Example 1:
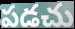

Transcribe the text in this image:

పడచు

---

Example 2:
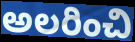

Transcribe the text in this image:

అలరించి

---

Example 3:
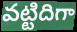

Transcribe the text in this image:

వట్టిదిగా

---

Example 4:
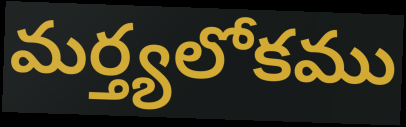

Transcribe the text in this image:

మర్త్యలోకము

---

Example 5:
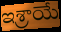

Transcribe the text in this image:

ఇశ్రాయే